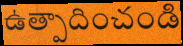
ఉత్పాదించండి